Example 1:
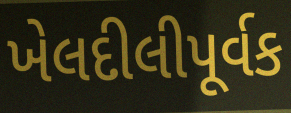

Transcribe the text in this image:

ખેલદીલીપૂર્વક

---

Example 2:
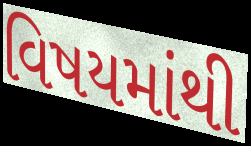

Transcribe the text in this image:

વિષયમાંથી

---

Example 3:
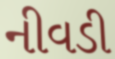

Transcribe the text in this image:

નીવડી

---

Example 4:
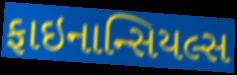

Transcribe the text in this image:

ફાઇનાન્સિયલ્સ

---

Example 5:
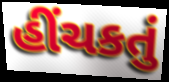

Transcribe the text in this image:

હીંચકતું